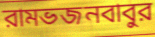
রামভজনবাবুর